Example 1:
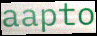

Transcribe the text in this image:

aapto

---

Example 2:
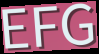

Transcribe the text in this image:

EFG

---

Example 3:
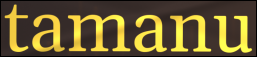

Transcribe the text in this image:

tamanu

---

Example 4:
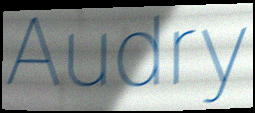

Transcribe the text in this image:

Audry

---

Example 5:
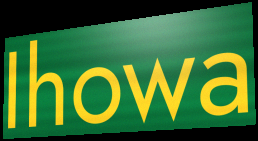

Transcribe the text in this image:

Ihowa